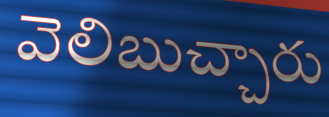
వెలిబుచ్చారు